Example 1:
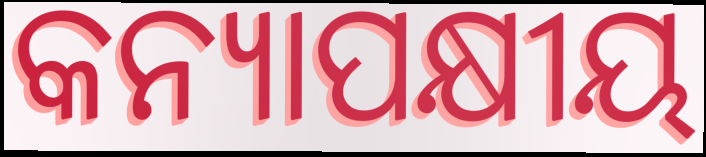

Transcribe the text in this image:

କନ୍ୟାପକ୍ଷୀୟ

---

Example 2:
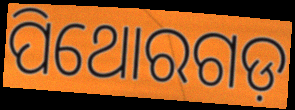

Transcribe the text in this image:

ପିଥୋରଗଡ଼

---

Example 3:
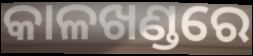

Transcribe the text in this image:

କାଳଖଣ୍ଡରେ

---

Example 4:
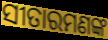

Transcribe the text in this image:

ସୀତାରମଣଙ୍କ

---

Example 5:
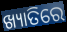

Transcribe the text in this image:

ଖ୍ୟାତିରେ